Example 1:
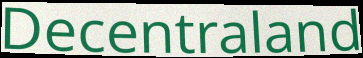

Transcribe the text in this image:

Decentraland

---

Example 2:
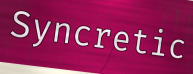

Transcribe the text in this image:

Syncretic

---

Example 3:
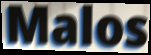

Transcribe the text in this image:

Malos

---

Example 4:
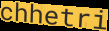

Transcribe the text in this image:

chhetri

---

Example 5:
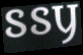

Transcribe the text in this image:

ssy